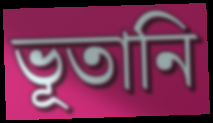
ভূতানি